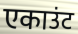
एकाउंट